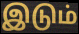
இடும்